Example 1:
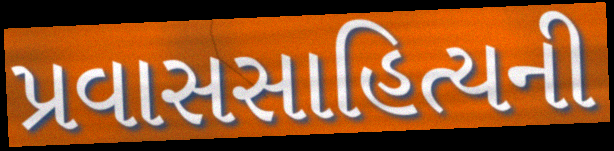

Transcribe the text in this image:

પ્રવાસસાહિત્યની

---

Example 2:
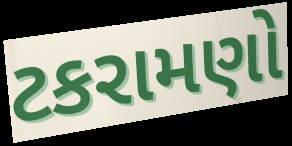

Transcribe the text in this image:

ટકરામણો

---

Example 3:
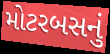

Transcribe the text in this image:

મોટરબસનું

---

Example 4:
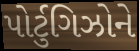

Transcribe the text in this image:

પોર્ટુગિઝોને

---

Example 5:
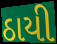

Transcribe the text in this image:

ઠાયી